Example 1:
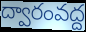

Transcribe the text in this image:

ద్వారంవద్ద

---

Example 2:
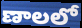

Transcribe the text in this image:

ణాలలో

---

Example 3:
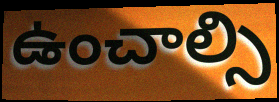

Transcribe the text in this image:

ఉంచాల్సి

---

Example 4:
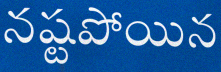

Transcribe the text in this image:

నష్టపోయిన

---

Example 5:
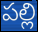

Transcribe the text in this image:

పల్లి